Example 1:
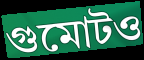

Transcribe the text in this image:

গুমোটও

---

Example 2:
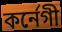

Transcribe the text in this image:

কর্নেগী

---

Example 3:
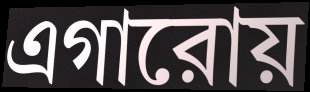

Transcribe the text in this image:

এগারোয়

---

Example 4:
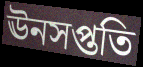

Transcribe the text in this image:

ঊনসপ্ততি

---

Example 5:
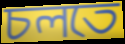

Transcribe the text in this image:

চলতে